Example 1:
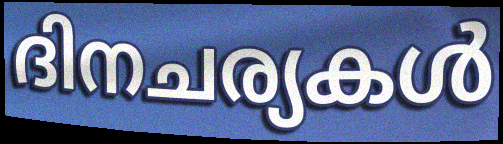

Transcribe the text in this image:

ദിനചര്യകൾ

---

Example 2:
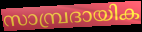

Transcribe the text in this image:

സാമ്പ്രദായിക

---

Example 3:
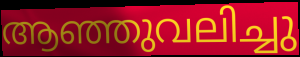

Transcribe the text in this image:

ആഞ്ഞുവലിച്ചു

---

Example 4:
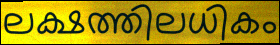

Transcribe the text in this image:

ലക്ഷത്തിലധികം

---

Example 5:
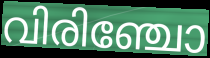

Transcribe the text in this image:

വിരിഞ്ചോ